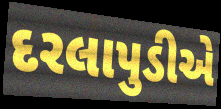
દરલાપુડીએ